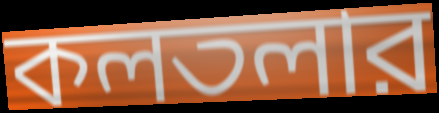
কলতলার